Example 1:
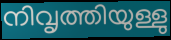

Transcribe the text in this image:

നിവൃത്തിയുള്ളു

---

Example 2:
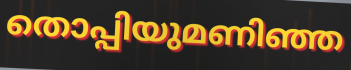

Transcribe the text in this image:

തൊപ്പിയുമണിഞ്ഞ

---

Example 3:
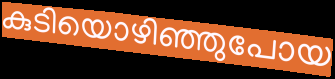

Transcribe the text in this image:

കുടിയൊഴിഞ്ഞുപോയ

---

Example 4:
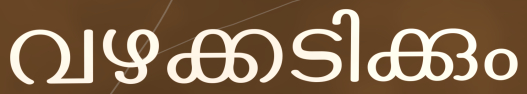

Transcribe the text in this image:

വഴക്കടിക്കും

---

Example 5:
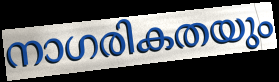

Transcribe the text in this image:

നാഗരികതയും